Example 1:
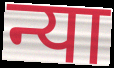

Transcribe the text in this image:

न्या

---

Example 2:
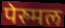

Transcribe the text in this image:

पेरुमल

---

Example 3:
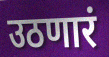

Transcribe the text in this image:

उठणारं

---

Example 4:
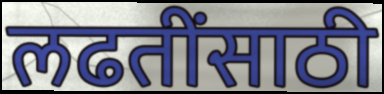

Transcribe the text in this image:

लढतींसाठी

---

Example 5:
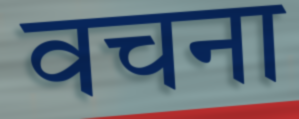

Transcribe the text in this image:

वचना